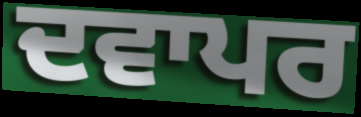
ਦਵਾਪਰ